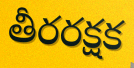
తీరరక్షక